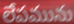
లేపమును